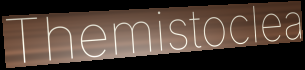
Themistoclea